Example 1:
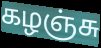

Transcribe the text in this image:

கழஞ்சு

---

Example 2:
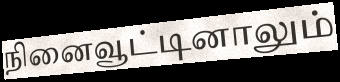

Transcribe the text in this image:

நினைவூட்டினாலும்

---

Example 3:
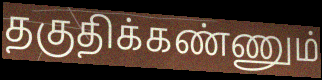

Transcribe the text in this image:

தகுதிக்கண்ணும்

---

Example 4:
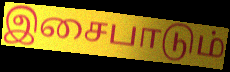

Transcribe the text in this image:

இசைபாடும்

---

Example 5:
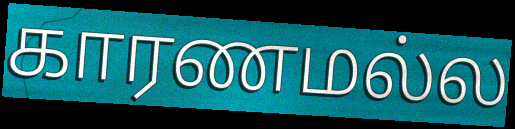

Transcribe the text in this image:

காரணமல்ல